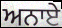
ਅਨਾਏ